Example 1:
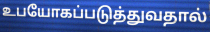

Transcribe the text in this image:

உபயோகப்படுத்துவதால்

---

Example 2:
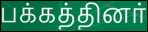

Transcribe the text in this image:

பக்கத்தினர்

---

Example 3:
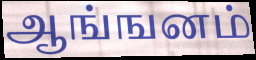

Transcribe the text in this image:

ஆங்ஙனம்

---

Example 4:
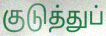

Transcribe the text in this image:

குடுத்துப்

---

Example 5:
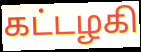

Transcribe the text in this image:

கட்டழகி